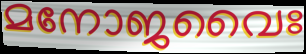
മനോജവൈഃ